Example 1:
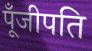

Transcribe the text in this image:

पूँजीपति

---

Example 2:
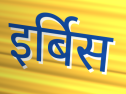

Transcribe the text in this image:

इर्बिस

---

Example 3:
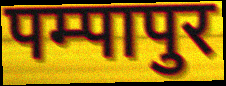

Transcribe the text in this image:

पम्पापुर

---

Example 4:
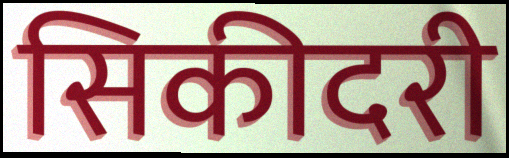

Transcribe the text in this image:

सिकीदरी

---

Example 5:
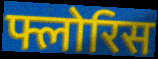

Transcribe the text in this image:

फ्लोरिस